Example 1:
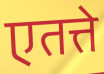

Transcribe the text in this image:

एतत्ते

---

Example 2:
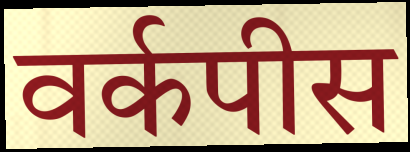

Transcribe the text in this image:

वर्कपीस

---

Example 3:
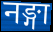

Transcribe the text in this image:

नङ्गा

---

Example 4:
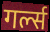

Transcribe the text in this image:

गर्ल्स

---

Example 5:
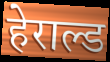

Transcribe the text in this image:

हेराल्ड